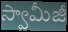
స్వామీజీ